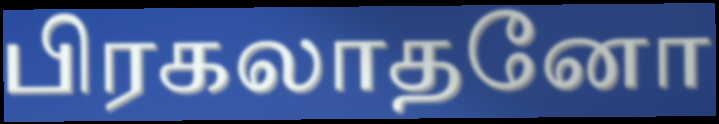
பிரகலாதனோ